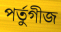
পর্তুগীজ